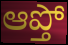
ఆప్తో